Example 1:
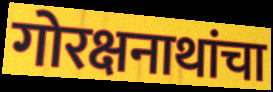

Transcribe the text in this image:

गोरक्षनाथांचा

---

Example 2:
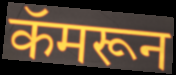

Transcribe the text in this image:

कॅमरून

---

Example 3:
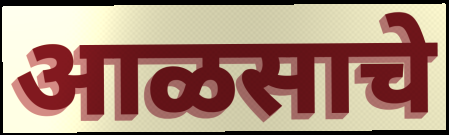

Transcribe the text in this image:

आळसाचे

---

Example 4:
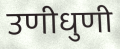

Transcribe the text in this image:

उणीधुणी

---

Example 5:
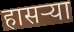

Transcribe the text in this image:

हासऱ्या